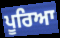
ਪੂਰਿਆ